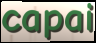
capai